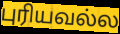
புரியவல்ல